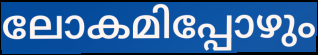
ലോകമിപ്പോഴും